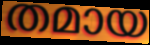
തമായ